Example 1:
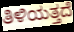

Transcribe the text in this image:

ತಿಳಿಯತ್ತದೆ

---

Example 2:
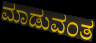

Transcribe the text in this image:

ಮಾಡುವಂತ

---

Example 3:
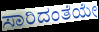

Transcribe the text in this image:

ಸಾರಿದಂತೆಯೇ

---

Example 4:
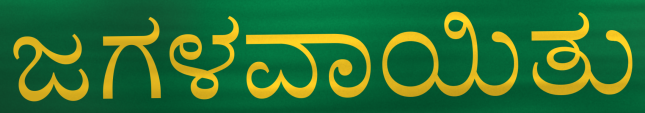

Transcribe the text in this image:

ಜಗಳವಾಯಿತು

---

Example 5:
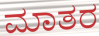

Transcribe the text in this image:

ಮಾತರ